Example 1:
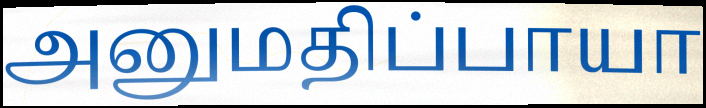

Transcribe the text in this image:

அனுமதிப்பாயா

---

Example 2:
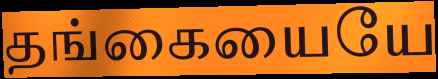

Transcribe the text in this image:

தங்கையையே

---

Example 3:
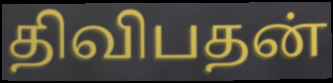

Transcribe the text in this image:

திவிபதன்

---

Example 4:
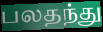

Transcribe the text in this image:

பலதந்து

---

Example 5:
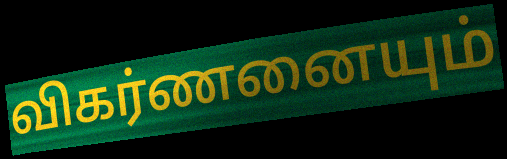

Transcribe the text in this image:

விகர்ணனையும்